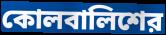
কোলবালিশের